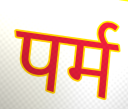
पर्म